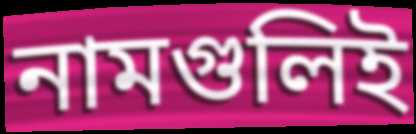
নামগুলিই